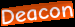
Deacon